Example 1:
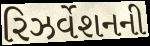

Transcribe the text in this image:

રિઝર્વેશનની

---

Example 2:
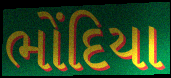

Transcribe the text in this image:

ભોંદિયા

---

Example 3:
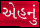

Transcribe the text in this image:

એહનું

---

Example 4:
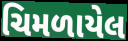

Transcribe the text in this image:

ચિમળાયેલ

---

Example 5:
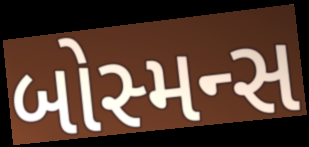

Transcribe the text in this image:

બોસ્મન્સ